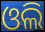
ଓଲି